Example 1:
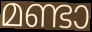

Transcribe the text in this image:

മണ്ടാ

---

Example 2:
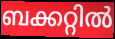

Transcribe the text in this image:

ബക്കറ്റിൽ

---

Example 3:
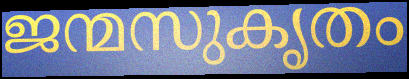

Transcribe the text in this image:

ജന്മസുകൃതം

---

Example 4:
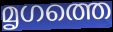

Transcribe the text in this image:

മൃഗത്തെ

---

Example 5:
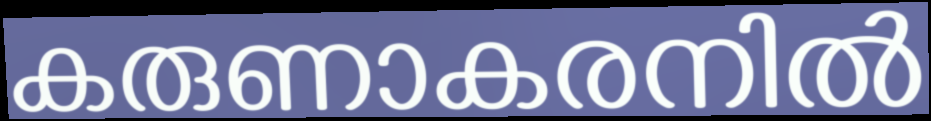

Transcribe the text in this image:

കരുണാകരനിൽ